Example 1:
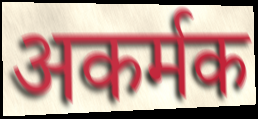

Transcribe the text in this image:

अकर्मक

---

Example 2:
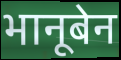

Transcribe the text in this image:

भानूबेन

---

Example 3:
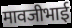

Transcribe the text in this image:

मावजीभाई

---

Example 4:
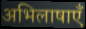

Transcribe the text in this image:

अभिलाषाएँ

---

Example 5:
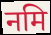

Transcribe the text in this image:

नमि